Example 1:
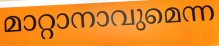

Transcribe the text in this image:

മാറ്റാനാവുമെന്ന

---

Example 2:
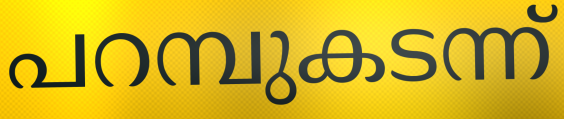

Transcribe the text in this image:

പറമ്പുകടന്ന്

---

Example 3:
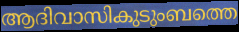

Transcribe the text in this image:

ആദിവാസികുടുംബത്തെ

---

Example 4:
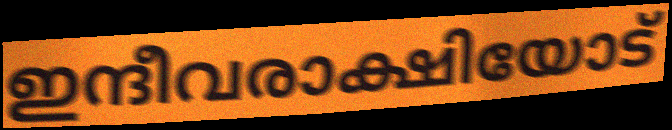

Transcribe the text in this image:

ഇന്ദീവരാക്ഷിയോട്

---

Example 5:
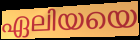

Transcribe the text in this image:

ഏലിയയെ